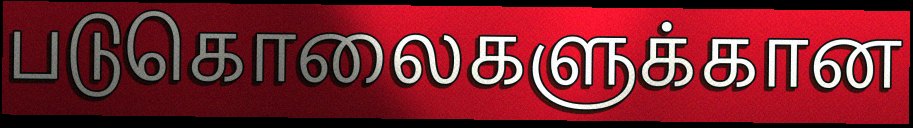
படுகொலைகளுக்கான